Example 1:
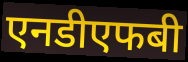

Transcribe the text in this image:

एनडीएफबी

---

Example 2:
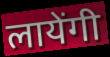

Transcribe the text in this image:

लायेंगी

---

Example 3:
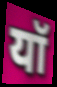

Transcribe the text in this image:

यॉ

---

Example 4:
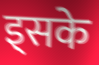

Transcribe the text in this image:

इ्सके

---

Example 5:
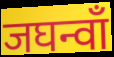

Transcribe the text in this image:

जघन्वाँ